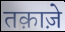
तक़ाज़े